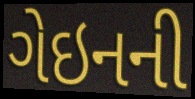
ગેઇનની